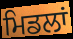
ਮਿਡਲਾਂ